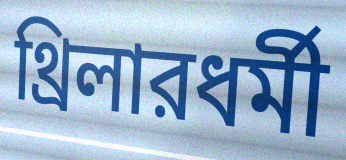
থ্রিলারধর্মী